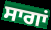
ਸਾਗਾਂ